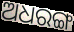
ଅଧରଙ୍ଗ